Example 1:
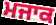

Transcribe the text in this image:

ਮਜਾਕ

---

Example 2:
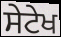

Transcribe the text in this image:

ਸੇਟੇਖ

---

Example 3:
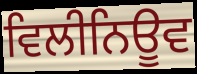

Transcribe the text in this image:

ਵਿਲੀਨਿਊਵ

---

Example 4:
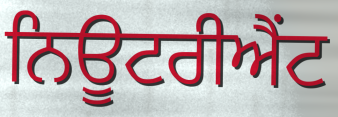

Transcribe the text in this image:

ਨਿਊਟਰੀਐਂਟ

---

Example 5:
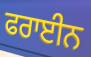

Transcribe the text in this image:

ਫਰਾਈਨ